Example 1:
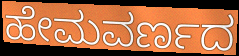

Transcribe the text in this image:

ಹೇಮವರ್ಣದ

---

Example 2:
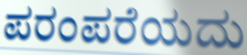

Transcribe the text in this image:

ಪರಂಪರೆಯದು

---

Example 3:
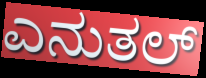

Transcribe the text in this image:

ಎನುತಲ್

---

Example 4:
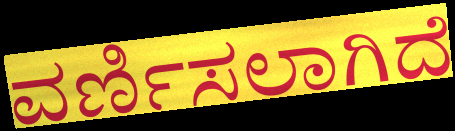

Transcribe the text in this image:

ವರ್ಣಿಸಲಾಗಿದೆ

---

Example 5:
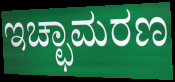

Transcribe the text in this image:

ಇಚ್ಛಾಮರಣ